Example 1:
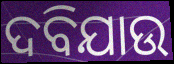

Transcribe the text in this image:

ଦବିଯାଉ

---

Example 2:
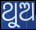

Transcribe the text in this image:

ଥୁଅ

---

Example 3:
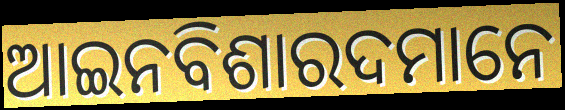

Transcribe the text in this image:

ଆଇନବିଶାରଦମାନେ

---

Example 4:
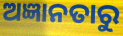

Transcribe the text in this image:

ଅଜ୍ଞାନତାରୁ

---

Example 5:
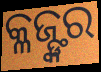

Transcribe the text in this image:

କ୍ଳଜ୍ଙ୍କର